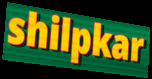
shilpkar